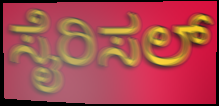
ಸೈರಿಸಲ್